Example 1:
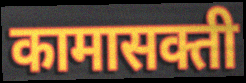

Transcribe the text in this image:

कामासक्ती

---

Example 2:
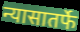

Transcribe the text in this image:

न्यासातर्फे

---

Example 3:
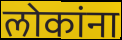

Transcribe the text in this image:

लोकांना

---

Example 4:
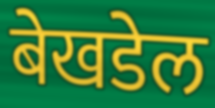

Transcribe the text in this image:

बेखडेल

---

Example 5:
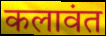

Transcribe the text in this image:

कलावंत